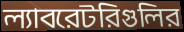
ল্যাবরেটরিগুলির